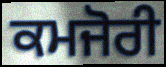
ਕਮਜੋਰੀ